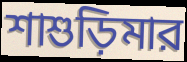
শাশুড়িমার